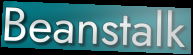
Beanstalk